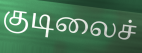
குடிலைச்